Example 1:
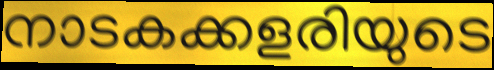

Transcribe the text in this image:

നാടകക്കളരിയുടെ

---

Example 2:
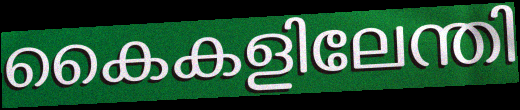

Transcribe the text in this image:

കൈകളിലേന്തി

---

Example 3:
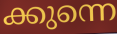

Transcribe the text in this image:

ക്കുന്നെ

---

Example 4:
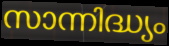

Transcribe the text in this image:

സാന്നിദ്ധ്യം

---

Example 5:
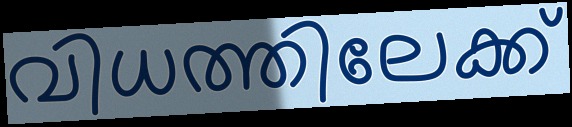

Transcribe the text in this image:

വിധത്തിലേക്ക്